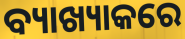
ବ୍ୟାଖ୍ୟାକରେ